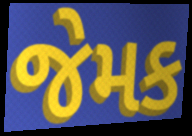
જેમક